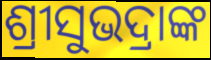
ଶ୍ରୀସୁଭଦ୍ରାଙ୍କ